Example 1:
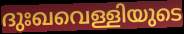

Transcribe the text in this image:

ദുഃഖവെള്ളിയുടെ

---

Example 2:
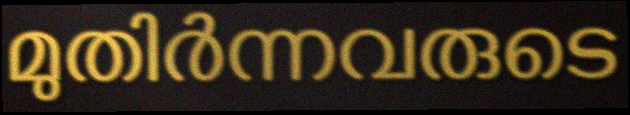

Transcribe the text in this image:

മുതിർന്നവരുടെ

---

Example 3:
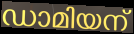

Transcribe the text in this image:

ഡാമിയന്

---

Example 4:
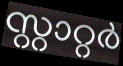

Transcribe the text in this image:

സ്റ്റാറ്റർ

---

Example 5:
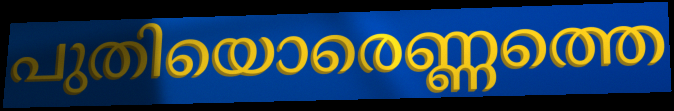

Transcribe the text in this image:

പുതിയൊരെണ്ണത്തെ